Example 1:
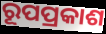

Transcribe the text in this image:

ରୂପପ୍ରକାଶ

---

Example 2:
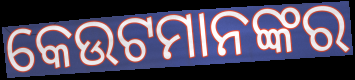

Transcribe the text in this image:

କେଉଟମାନଙ୍କର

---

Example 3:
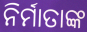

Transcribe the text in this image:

ନିର୍ମାତାଙ୍କ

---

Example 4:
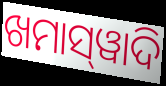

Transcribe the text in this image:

ଖମାସ୍‌ୱାଦି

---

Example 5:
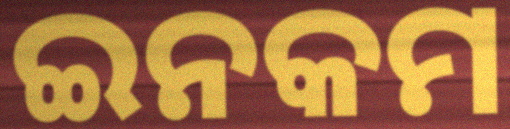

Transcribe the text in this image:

ଇନକମ